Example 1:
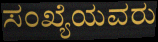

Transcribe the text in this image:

ಸಂಖ್ಯೆಯವರು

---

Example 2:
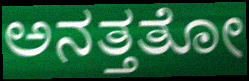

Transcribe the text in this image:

ಅನತ್ತತೋ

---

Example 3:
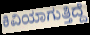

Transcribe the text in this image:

ಕಿವಿಯಾಗುತ್ತಿದ್ದೆ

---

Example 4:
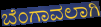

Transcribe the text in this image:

ಬೆಂಗಾವಲಾಗಿ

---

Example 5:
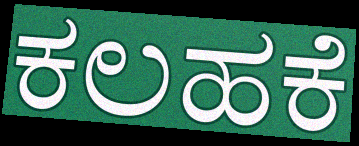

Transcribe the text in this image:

ಕಲಹಕೆ